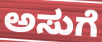
ಅಸುಗೆ